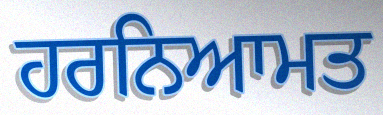
ਹਰਨਿਆਮਤ